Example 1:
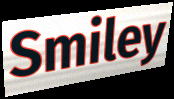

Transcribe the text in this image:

Smiley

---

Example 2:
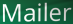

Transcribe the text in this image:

Mailer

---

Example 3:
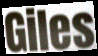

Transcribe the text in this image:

Giles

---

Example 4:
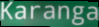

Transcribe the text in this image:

Karanga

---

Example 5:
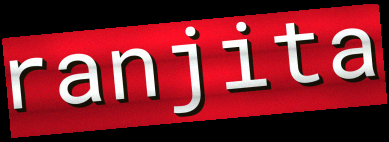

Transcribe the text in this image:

ranjita